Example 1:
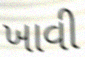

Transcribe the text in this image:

ખાવી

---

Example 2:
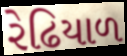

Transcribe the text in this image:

રેઢિયાળ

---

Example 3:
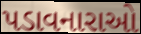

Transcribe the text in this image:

પડાવનારાઓ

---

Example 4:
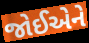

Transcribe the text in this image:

જોઈએને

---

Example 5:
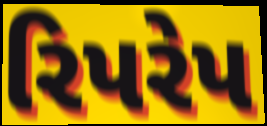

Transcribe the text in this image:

રિપરેપ